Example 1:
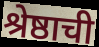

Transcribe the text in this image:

श्रेष्ठाची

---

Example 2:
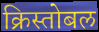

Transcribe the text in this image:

क्रिस्तोबल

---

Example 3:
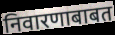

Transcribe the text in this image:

निवारणाबाबत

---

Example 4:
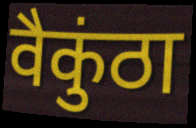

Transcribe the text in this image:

वैकुंठा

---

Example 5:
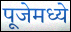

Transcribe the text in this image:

पूजेमध्ये